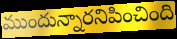
ముందున్నారనిపించింది